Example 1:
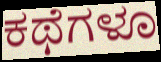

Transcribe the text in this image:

ಕಥೆಗಳೂ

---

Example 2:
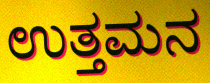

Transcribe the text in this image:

ಉತ್ತಮನ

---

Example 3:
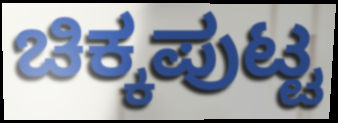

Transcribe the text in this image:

ಚಿಕ್ಕಪುಟ್ಟ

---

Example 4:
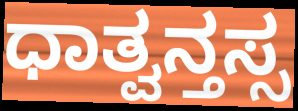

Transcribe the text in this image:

ಧಾತ್ವನ್ತಸ್ಸ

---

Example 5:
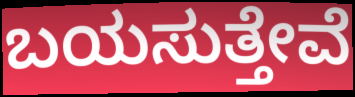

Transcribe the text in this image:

ಬಯಸುತ್ತೇವೆ